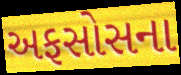
અફસોસના